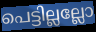
പെട്ടില്ലല്ലോ